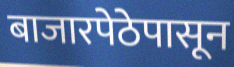
बाजारपेठेपासून